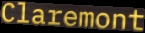
Claremont